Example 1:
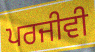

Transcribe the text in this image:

ਪਰਜੀਵੀ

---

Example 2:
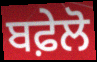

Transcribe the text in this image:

ਬਫ਼ੇਲੋ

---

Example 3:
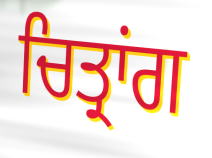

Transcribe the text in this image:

ਚਿਤ੍ਰਾਂਗ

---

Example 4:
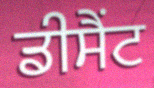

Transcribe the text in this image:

ਡੀਸੈਂਟ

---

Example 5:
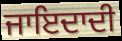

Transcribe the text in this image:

ਜਾਇਦਾਦੀ